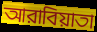
আরাবিয়াতা